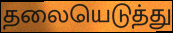
தலையெடுத்து